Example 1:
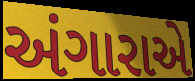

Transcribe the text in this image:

અંગારાએ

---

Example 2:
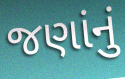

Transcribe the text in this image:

જણાંનું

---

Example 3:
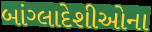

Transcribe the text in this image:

બાંગ્લાદેશીઓના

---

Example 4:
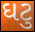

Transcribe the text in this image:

ઘટુ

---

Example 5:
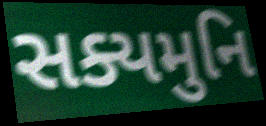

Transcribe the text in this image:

સક્યમુનિ